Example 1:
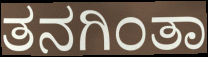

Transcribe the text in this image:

ತನಗಿಂತಾ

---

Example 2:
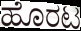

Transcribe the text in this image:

ಹೊರಟ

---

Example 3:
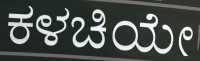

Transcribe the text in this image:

ಕಳಚಿಯೇ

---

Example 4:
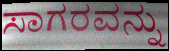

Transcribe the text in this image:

ಸಾಗರವನ್ನು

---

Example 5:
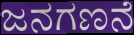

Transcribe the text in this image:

ಜನಗಣನೆ